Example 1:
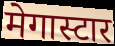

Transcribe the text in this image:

मेगास्टार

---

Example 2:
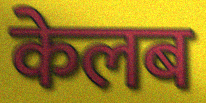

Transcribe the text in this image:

केलब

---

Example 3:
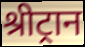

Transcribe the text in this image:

श्रीट्रान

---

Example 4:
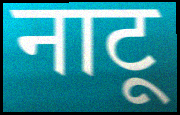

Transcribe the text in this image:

नाटू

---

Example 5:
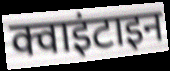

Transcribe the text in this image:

क्वाइंटाइन